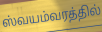
ஸ்வயம்வரத்தில்